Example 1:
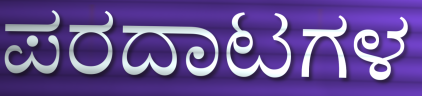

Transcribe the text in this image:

ಪರದಾಟಗಳ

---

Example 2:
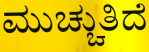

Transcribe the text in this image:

ಮುಚ್ಚುತಿದೆ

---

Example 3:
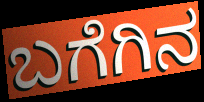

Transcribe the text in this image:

ಬಗೆಗಿನ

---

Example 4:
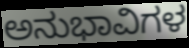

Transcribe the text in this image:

ಅನುಭಾವಿಗಳ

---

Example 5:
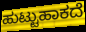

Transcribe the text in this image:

ಹುಟ್ಟುಹಾಕದೆ